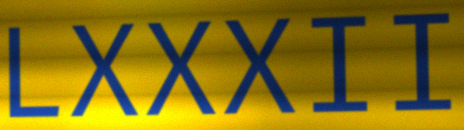
LXXXII